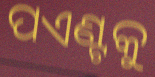
ପଏଣ୍ଟକୁ